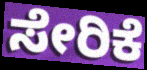
ಸೇರಿಕೆ